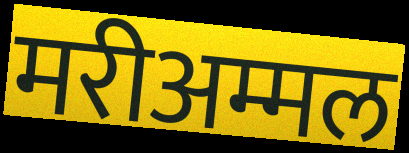
मरीअम्मल